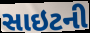
સાઇટની